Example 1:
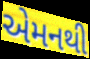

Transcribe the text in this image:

એમનથી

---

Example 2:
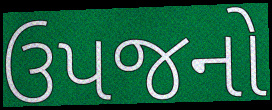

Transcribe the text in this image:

ઉપજનો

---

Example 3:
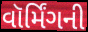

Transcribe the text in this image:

વૉર્મિંગની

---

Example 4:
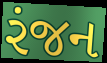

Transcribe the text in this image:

રંજન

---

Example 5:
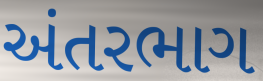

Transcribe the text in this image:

અંતરભાગ